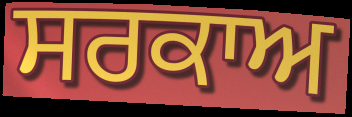
ਸਰਕਾਅ